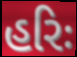
હરિઃ